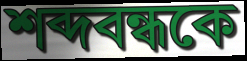
শব্দবন্ধকে